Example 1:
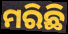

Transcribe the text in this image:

ମରିଛି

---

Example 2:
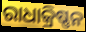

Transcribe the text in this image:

ରାଧାକ୍ରିଷ୍ଣନ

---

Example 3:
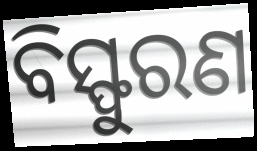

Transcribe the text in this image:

ବିସ୍ଫୁରଣ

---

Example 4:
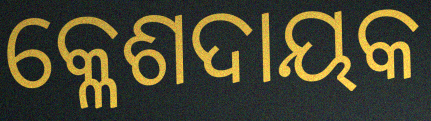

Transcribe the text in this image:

କ୍ଳେଶଦାୟକ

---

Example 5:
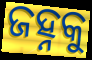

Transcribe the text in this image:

ଜହ୍ନକୁ